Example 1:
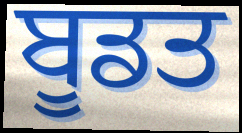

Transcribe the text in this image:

ਬੂਡਤ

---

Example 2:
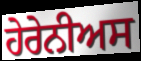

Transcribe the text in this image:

ਹੇਰੇਨੀਅਸ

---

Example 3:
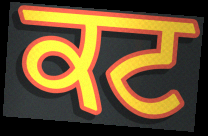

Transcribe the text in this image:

ਕਟ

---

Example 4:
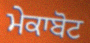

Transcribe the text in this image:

ਮੇਕਾਬੋਟ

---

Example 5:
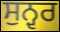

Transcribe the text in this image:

ਸੁਨ੍ਦਰ